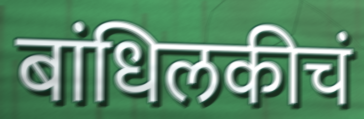
बांधिलकीचं